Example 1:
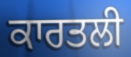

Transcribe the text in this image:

ਕਾਰਤਲੀ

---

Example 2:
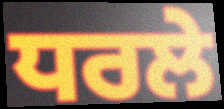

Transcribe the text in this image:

ਧਰਲੇ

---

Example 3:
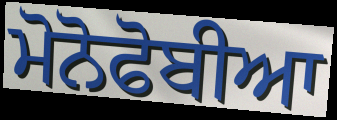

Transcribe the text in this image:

ਮੋਨੋਫੋਬੀਆ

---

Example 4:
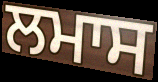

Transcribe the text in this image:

ਲਮਾਸ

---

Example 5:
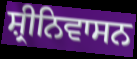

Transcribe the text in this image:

ਸ਼੍ਰੀਨਿਵਾਸਨ